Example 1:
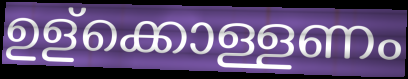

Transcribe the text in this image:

ഉള്ക്കൊള്ളണം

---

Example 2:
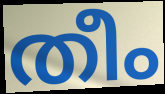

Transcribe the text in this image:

തീം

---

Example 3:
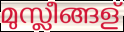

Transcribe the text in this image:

മുസ്ലീങ്ങള്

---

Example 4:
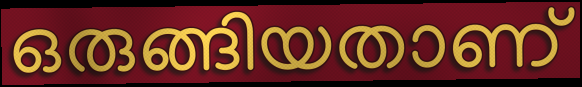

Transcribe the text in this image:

ഒരുങ്ങിയതാണ്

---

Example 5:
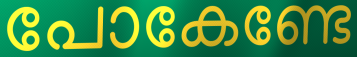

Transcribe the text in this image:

പോകേണ്ടേ